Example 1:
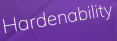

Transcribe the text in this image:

Hardenability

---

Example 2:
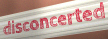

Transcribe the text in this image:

disconcerted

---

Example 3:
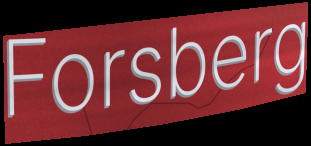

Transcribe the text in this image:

Forsberg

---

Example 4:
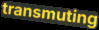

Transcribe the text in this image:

transmuting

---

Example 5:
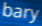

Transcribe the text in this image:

bary